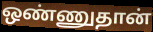
ஒண்ணுதான்